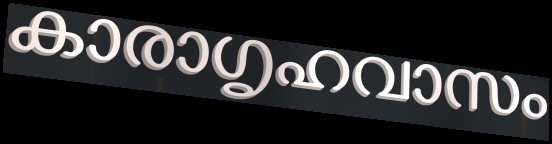
കാരാഗൃഹവാസം